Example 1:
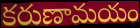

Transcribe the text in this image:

కరుణామయం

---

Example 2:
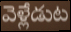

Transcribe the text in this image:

వెళ్లేడుట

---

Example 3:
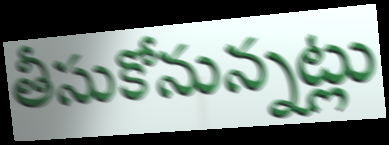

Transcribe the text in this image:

తీసుకోనున్నట్లు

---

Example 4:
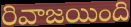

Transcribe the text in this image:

రివాజయింది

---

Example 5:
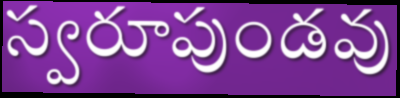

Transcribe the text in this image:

స్వరూపుండవు